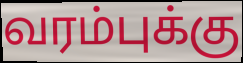
வரம்புக்கு